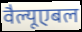
वैल्यूएबल